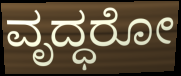
ವೃದ್ಧರೋ